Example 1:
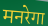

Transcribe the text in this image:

मनरेगा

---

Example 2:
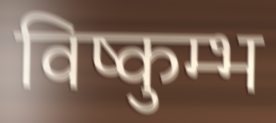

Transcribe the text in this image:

विष्कुम्भ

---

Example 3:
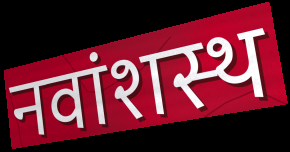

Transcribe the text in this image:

नवांशस्थ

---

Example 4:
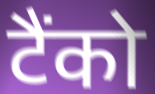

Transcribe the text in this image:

टैंको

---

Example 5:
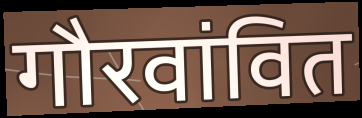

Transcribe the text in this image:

गौरवांवित